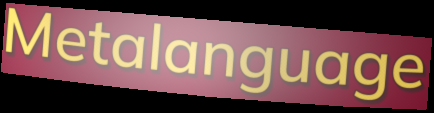
Metalanguage